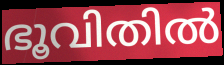
ഭൂവിതിൽ